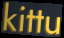
kittu